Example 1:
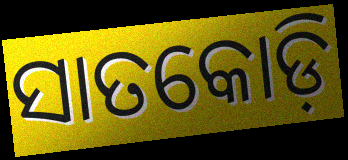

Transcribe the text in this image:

ସାତକୋଡ଼ି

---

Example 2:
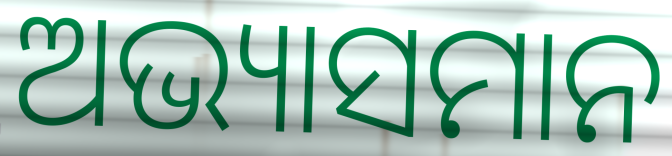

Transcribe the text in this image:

ଅଭ୍ୟାସମାନ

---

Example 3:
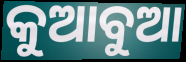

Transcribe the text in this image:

କୁଆବୁଆ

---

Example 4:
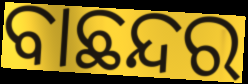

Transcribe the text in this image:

ବାଛନ୍ଦର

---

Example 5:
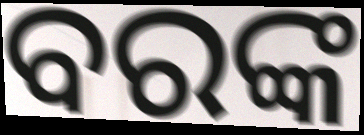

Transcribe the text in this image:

ବରଙ୍କ